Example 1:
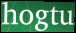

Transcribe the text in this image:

hogtu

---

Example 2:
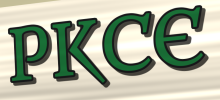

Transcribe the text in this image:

PKCE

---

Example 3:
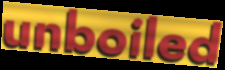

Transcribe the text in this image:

unboiled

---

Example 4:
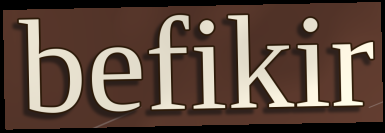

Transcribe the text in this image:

befikir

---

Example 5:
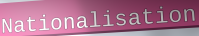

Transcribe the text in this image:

Nationalisation